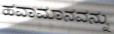
ಹವಾಮಾನವನ್ನು